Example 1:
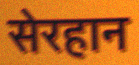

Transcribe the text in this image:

सेरहान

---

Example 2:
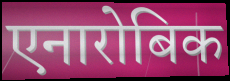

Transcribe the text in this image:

एनारोबिक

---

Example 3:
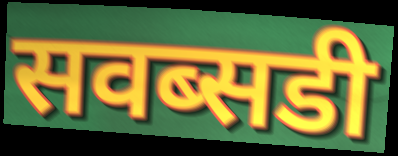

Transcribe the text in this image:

सवब्सडी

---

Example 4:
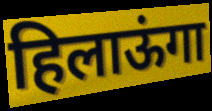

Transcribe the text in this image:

हिलाऊंगा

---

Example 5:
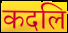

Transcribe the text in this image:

कदलि